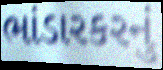
ભાંડારકરનું